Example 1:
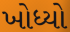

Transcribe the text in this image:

ખોધ્યો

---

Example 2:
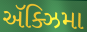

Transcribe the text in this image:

ઍક્ઝિમા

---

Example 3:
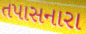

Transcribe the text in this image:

તપાસનારા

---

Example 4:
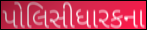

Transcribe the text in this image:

પોલિસીધારકના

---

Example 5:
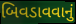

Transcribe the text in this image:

બિવડાવવાનું